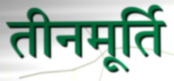
तीनमूर्ति